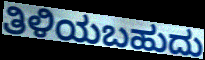
ತಿಳಿಯಬಹುದು